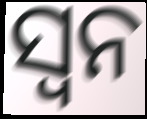
ସ୍ୱନ